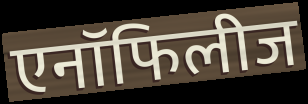
एनॉफिलीज